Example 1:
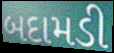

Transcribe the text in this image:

બદામડી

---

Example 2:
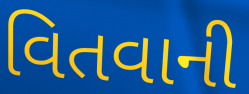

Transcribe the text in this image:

વિતવાની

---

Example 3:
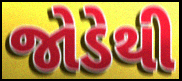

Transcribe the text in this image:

જોડેથી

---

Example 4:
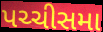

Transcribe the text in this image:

પચ્ચીસમા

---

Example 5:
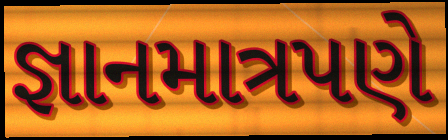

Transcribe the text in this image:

જ્ઞાનમાત્રપણે